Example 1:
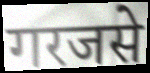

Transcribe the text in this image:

गरजसे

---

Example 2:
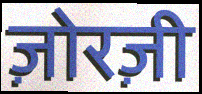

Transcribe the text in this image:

ज़ोरज़ी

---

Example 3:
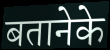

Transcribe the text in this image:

बतानेके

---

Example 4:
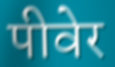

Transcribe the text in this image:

पीवेर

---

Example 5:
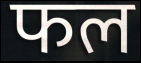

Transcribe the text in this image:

फल